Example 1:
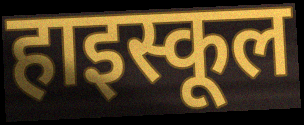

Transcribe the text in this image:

हाइस्कूल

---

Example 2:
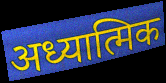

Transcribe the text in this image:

अध्यात्मिक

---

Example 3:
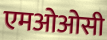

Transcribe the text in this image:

एमओओसी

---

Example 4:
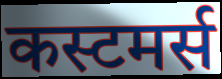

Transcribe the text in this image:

कस्‍टमर्स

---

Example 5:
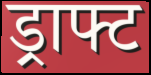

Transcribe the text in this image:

ड्राफ्ट